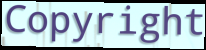
Copyright